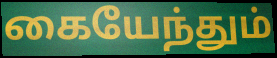
கையேந்தும்